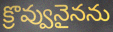
క్రొవ్వునైనను